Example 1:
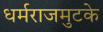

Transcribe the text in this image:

धर्मराजमुटके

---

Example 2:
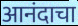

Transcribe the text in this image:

आनंदाचा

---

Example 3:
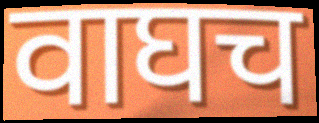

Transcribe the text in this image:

वाघच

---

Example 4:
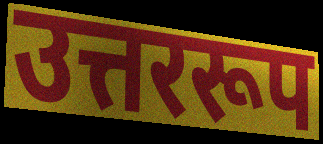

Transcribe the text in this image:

उत्तररूप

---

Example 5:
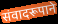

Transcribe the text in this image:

संवादरूपाने